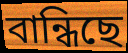
বান্ধিছে